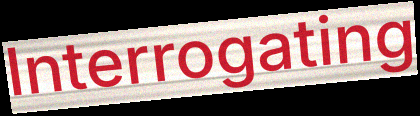
Interrogating